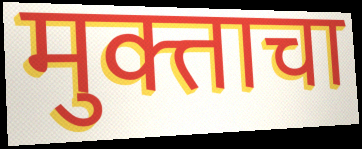
मुक्ताचा